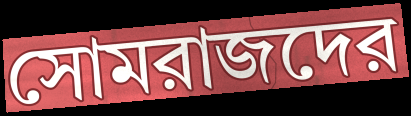
সোমরাজদের